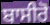
ਬਾਸੀਰੋ